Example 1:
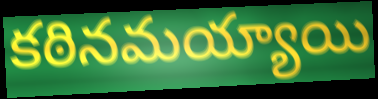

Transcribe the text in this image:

కఠినమయ్యాయి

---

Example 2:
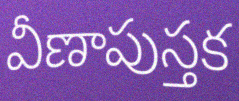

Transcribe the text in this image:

వీణాపుస్తక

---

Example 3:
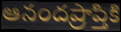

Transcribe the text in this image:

ఆనందప్రాప్తికి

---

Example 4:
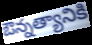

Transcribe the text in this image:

ఔన్నత్యానికి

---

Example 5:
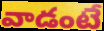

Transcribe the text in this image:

వాడంటే